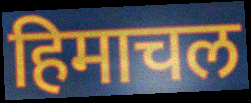
हिमाचल